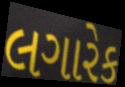
લગારેક